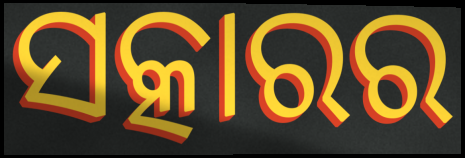
ସତ୍କାରର